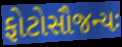
ફોટોસૌજન્યઃ